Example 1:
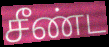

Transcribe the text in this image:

சீண்ட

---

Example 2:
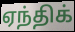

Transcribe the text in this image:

ஏந்திக்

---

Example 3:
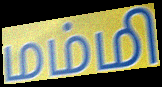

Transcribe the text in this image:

மம்மி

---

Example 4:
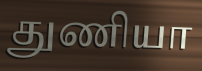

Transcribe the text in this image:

துணியா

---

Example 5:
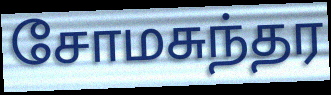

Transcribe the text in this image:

சோமசுந்தர